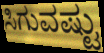
ಸಿಗುವಷ್ಟು